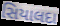
સિયાલદા